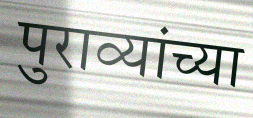
पुराव्यांच्या